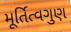
મૂર્તિત્વગુણ